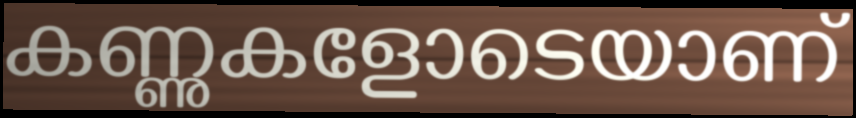
കണ്ണുകളോടെയാണ്